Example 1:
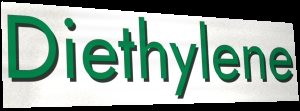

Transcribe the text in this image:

Diethylene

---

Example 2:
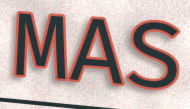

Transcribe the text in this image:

MAS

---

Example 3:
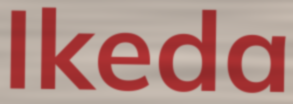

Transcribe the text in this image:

Ikeda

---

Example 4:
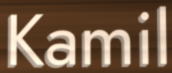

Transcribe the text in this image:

Kamil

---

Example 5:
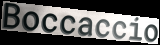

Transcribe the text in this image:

Boccaccio